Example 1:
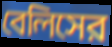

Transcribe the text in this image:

বেলিসের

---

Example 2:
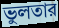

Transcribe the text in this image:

ভুলতার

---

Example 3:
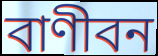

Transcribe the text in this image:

বাণীবন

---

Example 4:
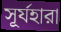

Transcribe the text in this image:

সূর্যহারা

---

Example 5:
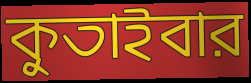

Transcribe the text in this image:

কুতাইবার